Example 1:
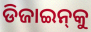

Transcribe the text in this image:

ଡିଜାଇନ୍‌କୁ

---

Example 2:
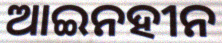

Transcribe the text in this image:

ଆଇନହୀନ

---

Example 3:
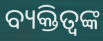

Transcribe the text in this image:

ବ୍ୟକ୍ତିତ୍ବଙ୍କ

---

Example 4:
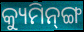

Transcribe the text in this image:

କ୍ୟୁମିନ୍‌ଙ୍ଗ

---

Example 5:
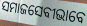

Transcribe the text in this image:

ସମାଜସେବୀଭାବେ